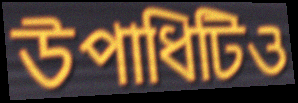
উপাধিটিও